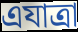
এযাত্রা